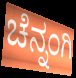
ಚೆನ್ನಂಗಿ